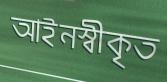
আইনস্বীকৃত